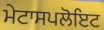
ਮੇਟਾਸਪਲੋਇਟ